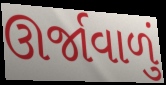
ઊર્જાવાળું